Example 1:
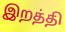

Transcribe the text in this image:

இறத்தி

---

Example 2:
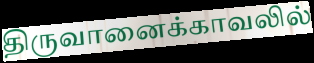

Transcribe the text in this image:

திருவானைக்காவலில்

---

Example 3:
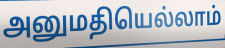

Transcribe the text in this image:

அனுமதியெல்லாம்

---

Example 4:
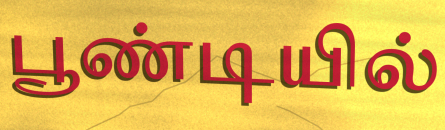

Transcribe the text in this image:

பூண்டியில்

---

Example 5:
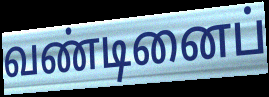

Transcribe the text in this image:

வண்டினைப்